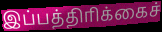
இப்பத்திரிக்கைச்